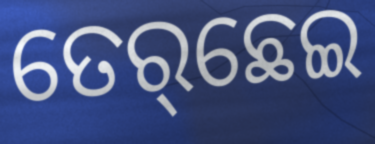
ତେର୍‌ଛେଇ